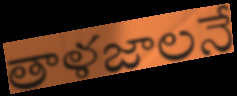
తాళజాలనే